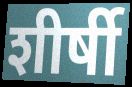
शीर्षी